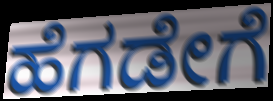
ಹೆಗಡೇಗೆ